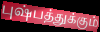
புஷ்பத்துக்கும்